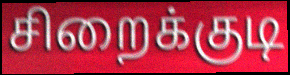
சிறைக்குடி